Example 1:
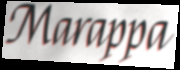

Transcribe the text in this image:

Marappa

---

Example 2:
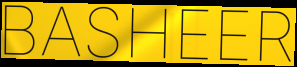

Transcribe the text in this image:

BASHEER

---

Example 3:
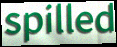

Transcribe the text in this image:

spilled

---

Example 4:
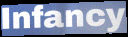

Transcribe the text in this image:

Infancy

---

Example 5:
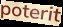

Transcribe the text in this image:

poterit